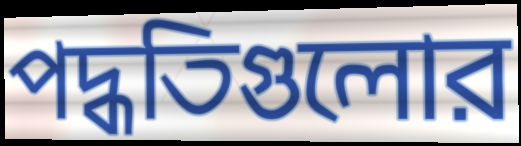
পদ্ধতিগুলোর